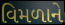
વિમળાને